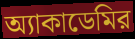
অ্যাকাডেমির